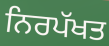
ਨਿਰਪੱਖਤ